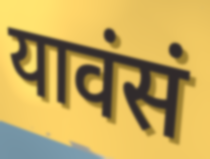
यावंसं